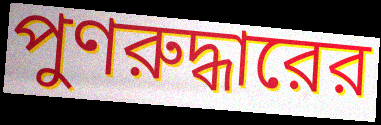
পুণরুদ্ধারের